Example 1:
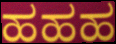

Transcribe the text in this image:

ಹಹಹ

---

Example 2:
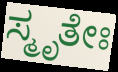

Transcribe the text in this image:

ಸ್ಮೃತೇಃ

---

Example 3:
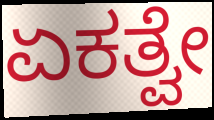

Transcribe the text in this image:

ಏಕತ್ವೇ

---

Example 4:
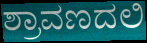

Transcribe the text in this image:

ಶ್ರಾವಣದಲಿ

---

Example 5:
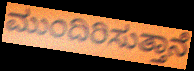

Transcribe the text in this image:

ಮುಂದಿರಿಸುತ್ತಾನೆ